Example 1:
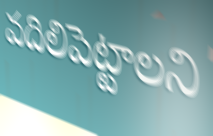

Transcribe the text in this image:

వదిలిపెట్టాలని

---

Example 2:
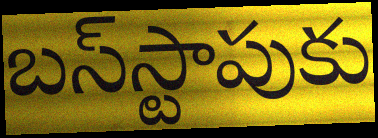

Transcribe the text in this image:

బస్‌స్టాపుకు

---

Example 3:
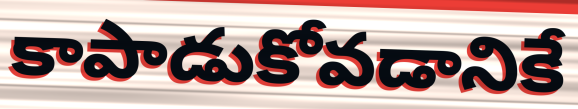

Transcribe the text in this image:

కాపాడుకోవడానికే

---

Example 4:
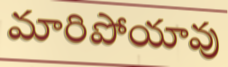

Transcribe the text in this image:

మారిపోయావు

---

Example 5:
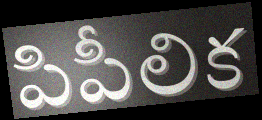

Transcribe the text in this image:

పిపీలిక